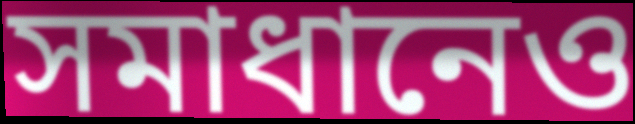
সমাধানেও